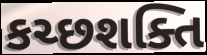
કચ્છશક્તિ